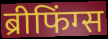
ब्रीफिंग्स